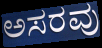
ಅಸರವು